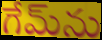
గేమ్‌ను